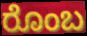
ರೊಂಬ